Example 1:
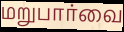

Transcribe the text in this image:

மறுபார்வை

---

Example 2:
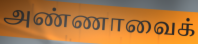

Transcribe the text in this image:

அண்ணாவைக்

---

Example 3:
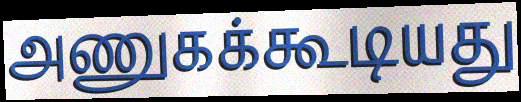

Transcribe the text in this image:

அணுகக்கூடியது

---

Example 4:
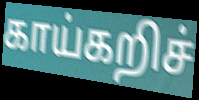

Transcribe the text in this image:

காய்கறிச்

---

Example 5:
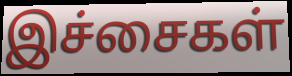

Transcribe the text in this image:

இச்சைகள்